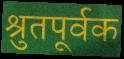
श्रुतपूर्वक